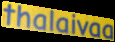
thalaivaa